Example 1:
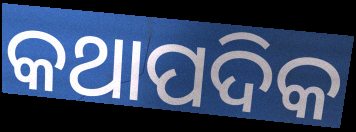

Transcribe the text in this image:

କଥାପଦିକ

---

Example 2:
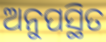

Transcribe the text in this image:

ଅନୁପସ୍ଥିତ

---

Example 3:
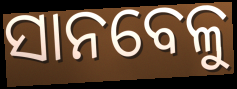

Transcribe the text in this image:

ସାନବେଳୁ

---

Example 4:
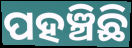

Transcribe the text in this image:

ପହଞ୍ଚିଛି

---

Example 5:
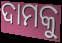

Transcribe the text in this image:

ଦାମକୁ